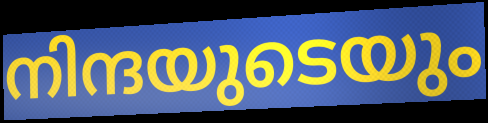
നിന്ദയുടെയും